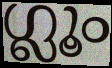
ഗ്ലൂം